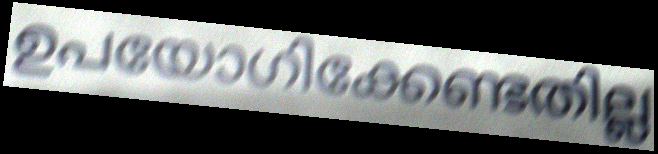
ഉപയോഗിക്കേണ്ടതില്ല